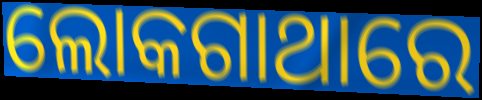
ଲୋକଗାଥାରେ